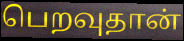
பெறவுதான்